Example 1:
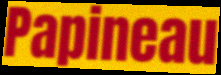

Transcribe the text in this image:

Papineau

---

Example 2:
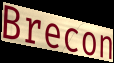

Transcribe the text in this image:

Brecon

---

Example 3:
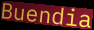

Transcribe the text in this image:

Buendia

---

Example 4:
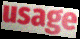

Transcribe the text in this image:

usage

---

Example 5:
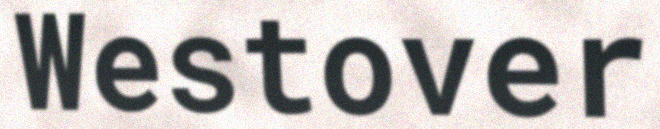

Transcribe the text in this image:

Westover